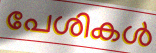
പേശികൾ